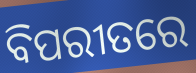
ବିପରୀତରେ